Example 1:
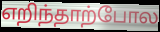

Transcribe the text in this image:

எறிந்தாற்போல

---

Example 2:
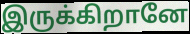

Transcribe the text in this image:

இருக்கிறானே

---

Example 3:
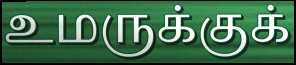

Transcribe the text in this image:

உமருக்குக்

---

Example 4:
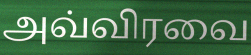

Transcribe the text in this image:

அவ்விரவை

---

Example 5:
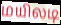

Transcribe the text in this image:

மயிலடி